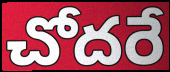
చోదరే